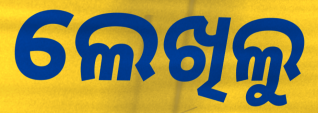
ଲେଖିଲୁ